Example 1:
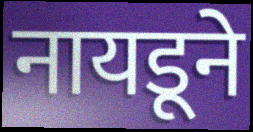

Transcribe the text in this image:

नायडूने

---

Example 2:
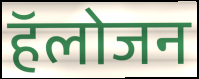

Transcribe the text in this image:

हॅलोजन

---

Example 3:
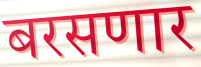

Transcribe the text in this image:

बरसणार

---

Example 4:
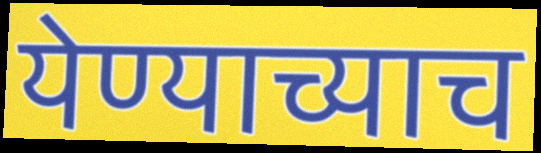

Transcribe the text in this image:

येण्याच्याच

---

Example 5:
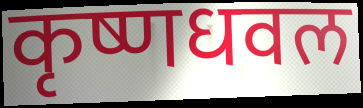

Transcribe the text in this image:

कृष्णधवल